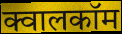
क्वालकॉम